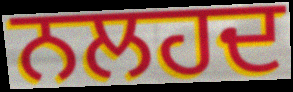
ਨਲਹਦ